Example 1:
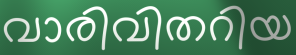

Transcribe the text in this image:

വാരിവിതറിയ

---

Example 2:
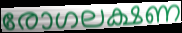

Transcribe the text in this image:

രോഗലക്ഷണ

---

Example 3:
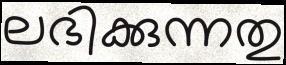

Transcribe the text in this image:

ലഭിക്കുന്നതു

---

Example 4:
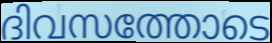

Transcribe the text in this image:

ദിവസത്തോടെ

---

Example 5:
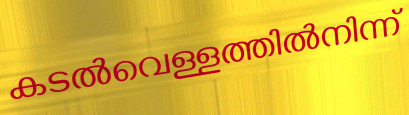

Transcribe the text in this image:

കടൽവെള്ളത്തിൽനിന്ന്